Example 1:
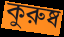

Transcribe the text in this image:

কুরুষ্ব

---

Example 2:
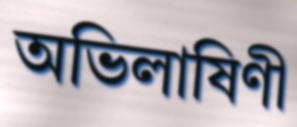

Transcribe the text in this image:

অভিলাষিণী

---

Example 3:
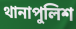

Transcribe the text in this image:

থানাপুলিশ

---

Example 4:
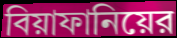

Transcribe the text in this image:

বিয়াফানিয়ের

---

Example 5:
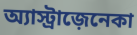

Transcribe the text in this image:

অ্যাস্ট্রাজ়েনেকা